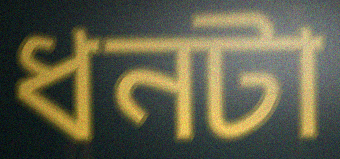
ধনটা